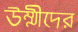
উম্মীদের